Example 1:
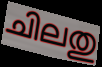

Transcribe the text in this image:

ചിലതു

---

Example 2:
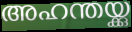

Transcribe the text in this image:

അഹന്തയ്ക്കു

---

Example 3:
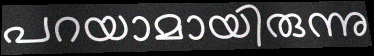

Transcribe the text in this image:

പറയാമായിരുന്നു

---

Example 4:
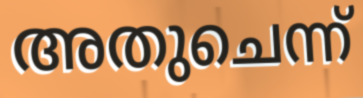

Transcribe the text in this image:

അതുചെന്ന്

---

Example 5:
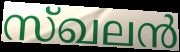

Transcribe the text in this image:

സ്ഖലൻ